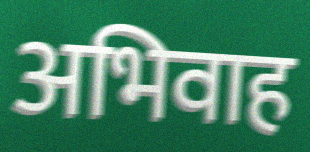
अभिवाह